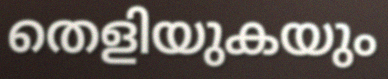
തെളിയുകയും